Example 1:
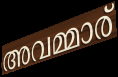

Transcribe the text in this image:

അവമ്മാര്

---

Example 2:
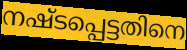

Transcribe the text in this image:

നഷ്ടപ്പെട്ടതിനെ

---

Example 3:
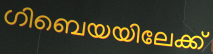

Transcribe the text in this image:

ഗിബെയയിലേക്ക്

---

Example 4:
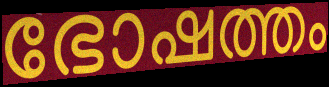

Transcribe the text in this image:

ഭോഷത്തം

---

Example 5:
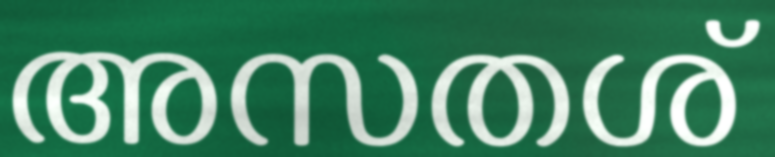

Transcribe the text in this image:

അസതശ്